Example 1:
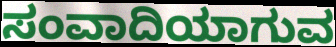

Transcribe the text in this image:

ಸಂವಾದಿಯಾಗುವ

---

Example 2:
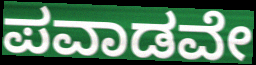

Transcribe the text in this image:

ಪವಾಡವೇ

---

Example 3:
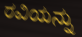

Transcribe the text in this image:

ರವಿಯನ್ನು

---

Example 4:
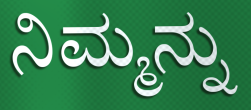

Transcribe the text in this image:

ನಿಮ್ಮನ್ನು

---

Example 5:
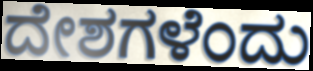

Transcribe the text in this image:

ದೇಶಗಳೆಂದು